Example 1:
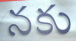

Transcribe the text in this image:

నకు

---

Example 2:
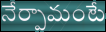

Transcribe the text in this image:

నేర్పామంటే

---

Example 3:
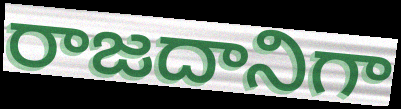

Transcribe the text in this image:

రాజదానిగా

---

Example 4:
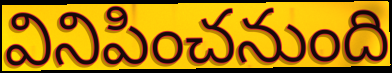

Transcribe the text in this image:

వినిపించనుంది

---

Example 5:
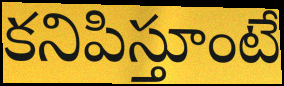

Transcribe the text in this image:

కనిపిస్తూంటే